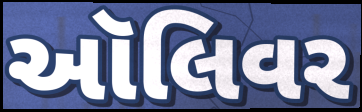
ઑલિવર